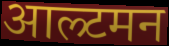
आल्टमन